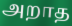
அறாத